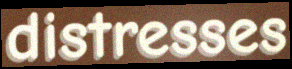
distresses